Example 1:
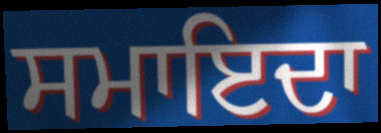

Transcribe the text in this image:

ਸਮਾਇਦਾ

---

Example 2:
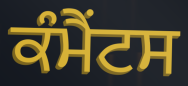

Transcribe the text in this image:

ਕੰਮੈਂਟਸ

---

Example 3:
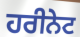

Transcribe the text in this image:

ਹਰੀਨੇਟ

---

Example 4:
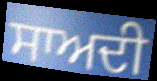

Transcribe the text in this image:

ਸਾਅਦੀ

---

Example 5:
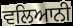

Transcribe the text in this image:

ਵਲਿਆਨੀ